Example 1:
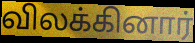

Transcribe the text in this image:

விலக்கினார்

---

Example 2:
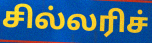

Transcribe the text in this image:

சில்லரிச்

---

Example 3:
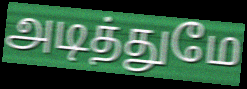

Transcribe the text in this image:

அடித்துமே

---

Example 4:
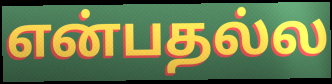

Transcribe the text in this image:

என்பதல்ல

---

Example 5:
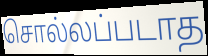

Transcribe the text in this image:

சொல்லப்படாத